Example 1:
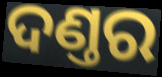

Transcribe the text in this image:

ଦଣ୍ତର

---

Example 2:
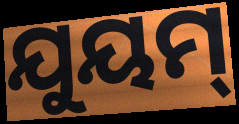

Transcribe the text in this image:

ଯୁୟମ୍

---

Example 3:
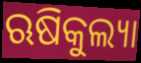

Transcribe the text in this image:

ଋଷିକୁଲ୍ୟା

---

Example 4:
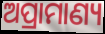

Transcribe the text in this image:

ଅପ୍ରାମାଣ୍ୟ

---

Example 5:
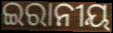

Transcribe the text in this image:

ଇରାନୀୟ